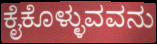
ಕೈಕೊಳ್ಳುವವನು